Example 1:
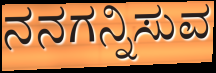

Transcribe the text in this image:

ನನಗನ್ನಿಸುವ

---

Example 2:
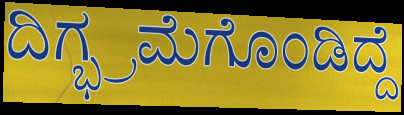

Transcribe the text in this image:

ದಿಗ್ಭ್ರಮೆಗೊಂಡಿದ್ದೆ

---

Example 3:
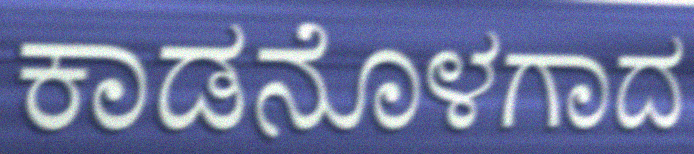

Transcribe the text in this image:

ಕಾಡನೊಳಗಾದ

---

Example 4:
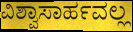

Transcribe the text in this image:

ವಿಶ್ವಾಸಾರ್ಹವಲ್ಲ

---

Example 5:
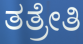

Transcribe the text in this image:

ತತ್ರೇತಿ